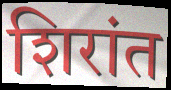
शिरांत